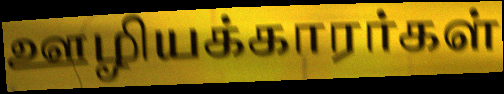
ஊழியக்காரர்கள்